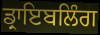
ਡ੍ਰਾਇਬਲਿੰਗ